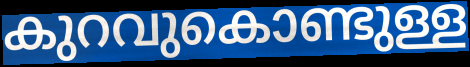
കുറവുകൊണ്ടുള്ള